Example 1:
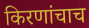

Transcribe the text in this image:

किरणांचाच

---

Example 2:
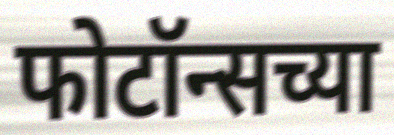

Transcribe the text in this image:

फोटॉन्सच्या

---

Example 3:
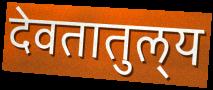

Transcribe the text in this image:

देवतातुल्य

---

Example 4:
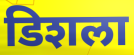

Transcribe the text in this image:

डिशला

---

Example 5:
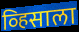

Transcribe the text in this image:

व्हिसाला